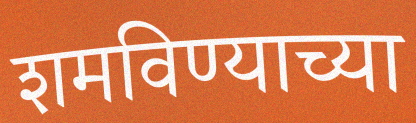
शमविण्याच्या